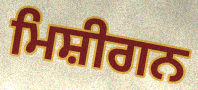
ਮਿਸ਼ੀਗਨ